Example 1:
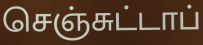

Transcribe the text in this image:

செஞ்சுட்டாப்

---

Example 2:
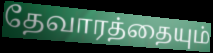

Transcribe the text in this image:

தேவாரத்தையும்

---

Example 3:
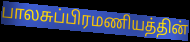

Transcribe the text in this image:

பாலசுப்பிரமணியத்தின்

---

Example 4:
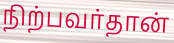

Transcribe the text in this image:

நிற்பவர்தான்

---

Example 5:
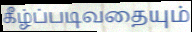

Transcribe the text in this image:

கீழ்ப்படிவதையும்